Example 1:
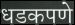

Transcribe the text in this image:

धडकपणे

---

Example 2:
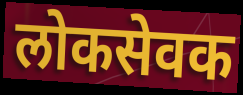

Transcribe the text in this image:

लोकसेवक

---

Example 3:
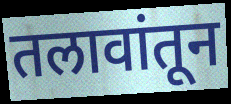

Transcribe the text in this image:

तलावांतून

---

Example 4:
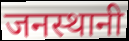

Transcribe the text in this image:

जनस्थानी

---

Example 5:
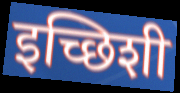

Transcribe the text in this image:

इच्छिशी